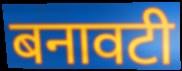
बनावटी